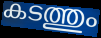
കടത്തും